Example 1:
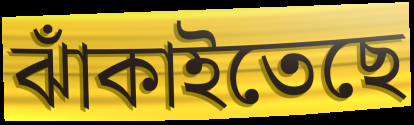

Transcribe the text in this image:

ঝাঁকাইতেছে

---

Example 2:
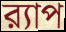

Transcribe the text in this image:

র‍্যাপ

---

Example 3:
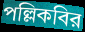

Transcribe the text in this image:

পল্লিকবির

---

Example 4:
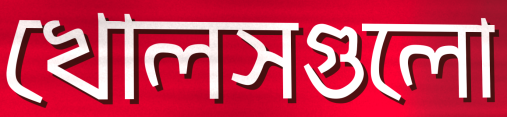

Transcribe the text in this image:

খোলসগুলো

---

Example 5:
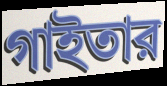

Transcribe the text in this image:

গাইতার